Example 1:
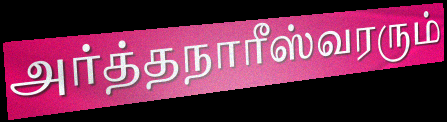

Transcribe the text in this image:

அர்த்தநாரீஸ்வரரும்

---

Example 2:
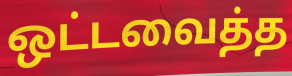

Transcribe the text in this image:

ஒட்டவைத்த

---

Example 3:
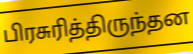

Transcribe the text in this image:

பிரசுரித்திருந்தன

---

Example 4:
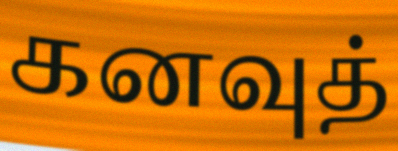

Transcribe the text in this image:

கனவுத்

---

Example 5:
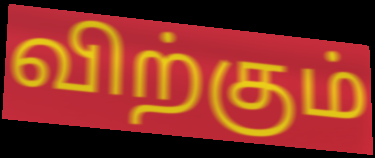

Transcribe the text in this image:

விற்கும்